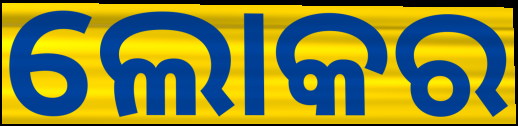
ଲୋକର